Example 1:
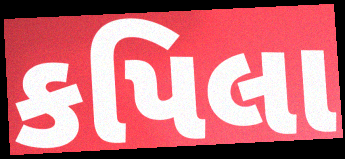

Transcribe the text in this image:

કપિલા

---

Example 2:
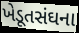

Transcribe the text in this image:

ખેડૂતસંઘના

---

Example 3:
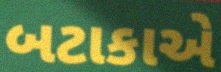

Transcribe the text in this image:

બટાકાએ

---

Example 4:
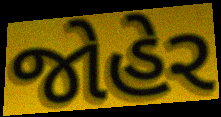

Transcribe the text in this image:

જોહેર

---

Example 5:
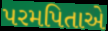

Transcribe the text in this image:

પરમપિતાએ